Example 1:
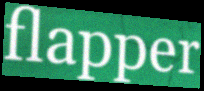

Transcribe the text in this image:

flapper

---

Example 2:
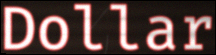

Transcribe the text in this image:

Dollar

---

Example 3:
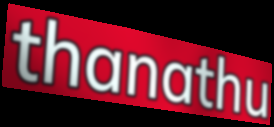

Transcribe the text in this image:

thanathu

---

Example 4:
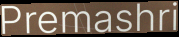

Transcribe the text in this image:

Premashri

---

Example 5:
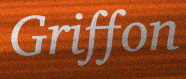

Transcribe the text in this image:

Griffon